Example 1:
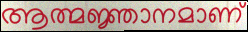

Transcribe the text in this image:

ആത്മജ്ഞാനമാണ്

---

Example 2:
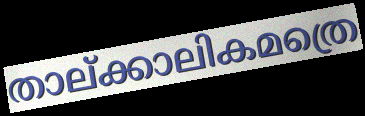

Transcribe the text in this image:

താല്ക്കാലികമത്രെ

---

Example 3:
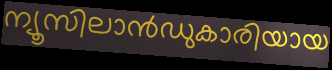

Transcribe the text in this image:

ന്യൂസിലാൻഡുകാരിയായ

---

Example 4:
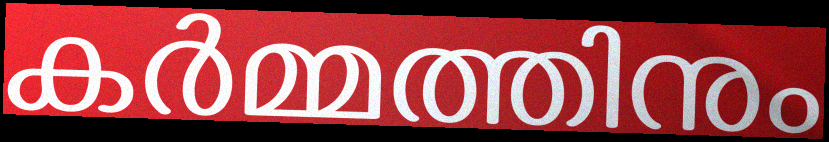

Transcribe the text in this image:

കർമ്മത്തിനും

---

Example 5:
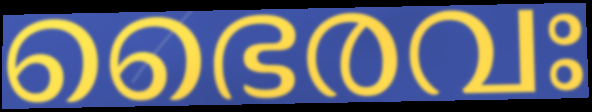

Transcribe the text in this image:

ഭൈരവഃ